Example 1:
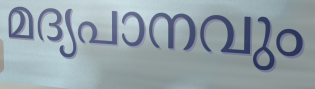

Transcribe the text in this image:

മദ്യപാനവും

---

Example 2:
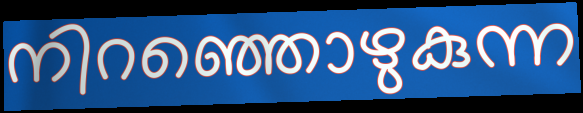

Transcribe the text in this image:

നിറഞ്ഞൊഴുകുന്ന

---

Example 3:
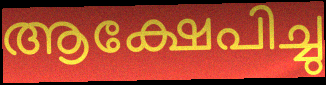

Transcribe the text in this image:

ആക്ഷേപിച്ചു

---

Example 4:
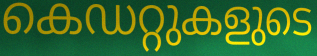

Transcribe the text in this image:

കെഡറ്റുകളുടെ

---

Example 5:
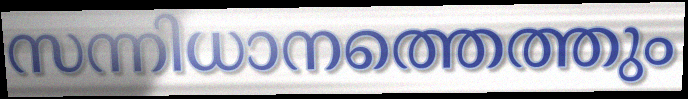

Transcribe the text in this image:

സന്നിധാനത്തെത്തും